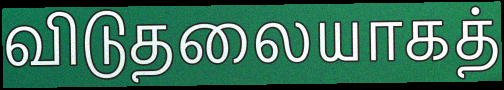
விடுதலையாகத்